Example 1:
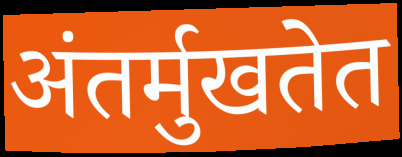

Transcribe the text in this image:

अंतर्मुखतेत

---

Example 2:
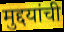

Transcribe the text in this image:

मुद्दयांची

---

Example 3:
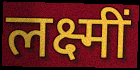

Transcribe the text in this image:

लक्ष्मीं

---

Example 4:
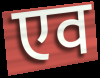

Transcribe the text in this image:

एव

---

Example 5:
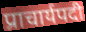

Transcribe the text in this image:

प्राचार्यपदी